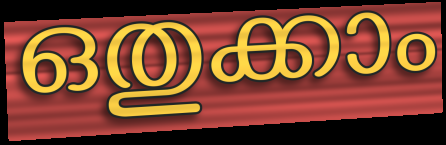
ഒതുക്കാം